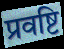
प्रवष्टि